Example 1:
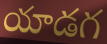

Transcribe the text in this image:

యాడగ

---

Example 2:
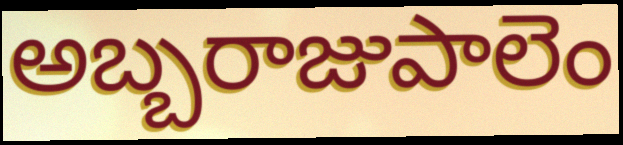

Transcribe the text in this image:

అబ్బరాజుపాలెం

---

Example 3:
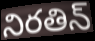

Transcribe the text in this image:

నిరతిన్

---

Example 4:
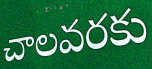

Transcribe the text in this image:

చాలవరకు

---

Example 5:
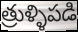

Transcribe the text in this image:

త్రుళ్ళిపడి